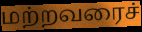
மற்றவரைச்